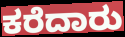
ಕರೆದಾರು